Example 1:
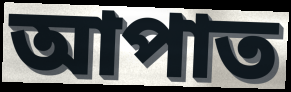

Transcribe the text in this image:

আপাত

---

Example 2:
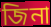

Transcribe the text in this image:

জিনা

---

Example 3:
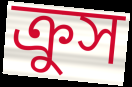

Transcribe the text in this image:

ক্রুস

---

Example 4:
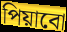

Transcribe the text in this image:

পিয়াবো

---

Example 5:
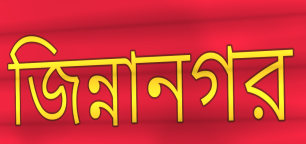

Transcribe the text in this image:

জিন্নানগর